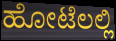
ಹೋಟೆಲಲ್ಲಿ